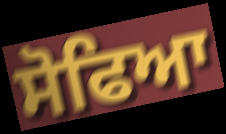
ਸੋਫਿਆ